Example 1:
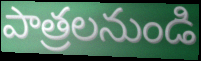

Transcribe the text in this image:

పాత్రలనుండి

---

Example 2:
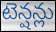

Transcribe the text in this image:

టెన్షన్లు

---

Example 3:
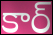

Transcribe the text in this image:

కార్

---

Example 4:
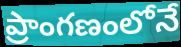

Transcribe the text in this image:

ప్రాంగణంలోనే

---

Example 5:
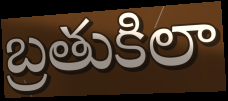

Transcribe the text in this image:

బ్రతుకిలా